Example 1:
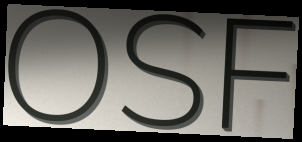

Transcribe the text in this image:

OSF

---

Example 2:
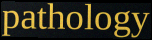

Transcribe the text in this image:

pathology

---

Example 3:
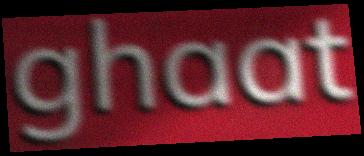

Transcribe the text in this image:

ghaat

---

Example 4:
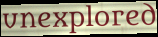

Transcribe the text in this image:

unexplored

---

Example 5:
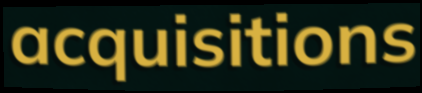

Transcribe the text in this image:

acquisitions